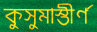
কুসুমাস্তীর্ণ